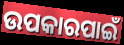
ଉପକାରପାଇଁ